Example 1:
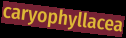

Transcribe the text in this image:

caryophyllacea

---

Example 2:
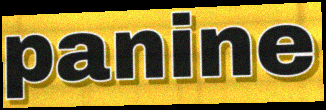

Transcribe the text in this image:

panine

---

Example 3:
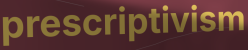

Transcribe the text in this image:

prescriptivism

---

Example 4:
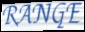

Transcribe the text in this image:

RANGE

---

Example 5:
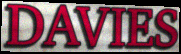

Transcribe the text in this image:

DAVIES